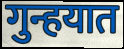
गुन्हयात